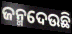
ଜନ୍ମଦେଉଛି